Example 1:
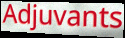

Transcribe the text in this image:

Adjuvants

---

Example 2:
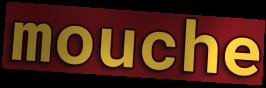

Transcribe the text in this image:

mouche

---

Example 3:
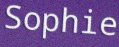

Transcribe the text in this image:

Sophie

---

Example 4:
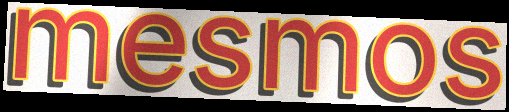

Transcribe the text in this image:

mesmos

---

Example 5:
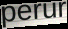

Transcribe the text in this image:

perur